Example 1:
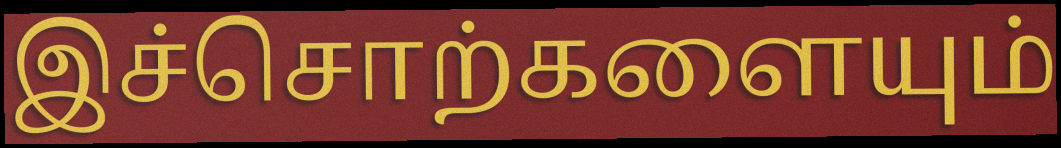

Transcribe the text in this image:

இச்சொற்களையும்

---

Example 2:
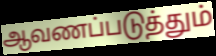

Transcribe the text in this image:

ஆவணப்படுத்தும்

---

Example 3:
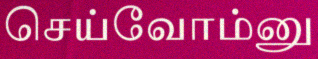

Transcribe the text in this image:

செய்வோம்னு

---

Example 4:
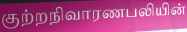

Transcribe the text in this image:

குற்றநிவாரணபலியின்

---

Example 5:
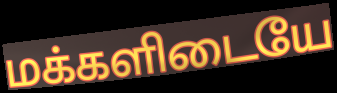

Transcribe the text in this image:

மக்களிடையே